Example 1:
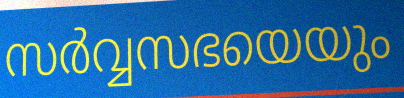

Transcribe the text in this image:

സർവ്വസഭയെയും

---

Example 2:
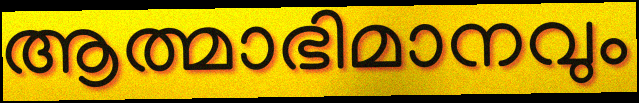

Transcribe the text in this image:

ആത്മാഭിമാനവും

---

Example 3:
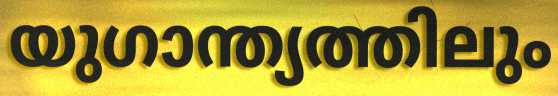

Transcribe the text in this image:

യുഗാന്ത്യത്തിലും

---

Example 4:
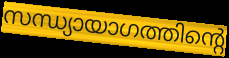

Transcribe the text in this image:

സന്ധ്യായാഗത്തിന്റെ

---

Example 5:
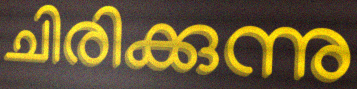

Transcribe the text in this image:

ചിരിക്കുന്നു